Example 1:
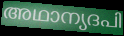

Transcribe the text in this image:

അഥാന്യദപി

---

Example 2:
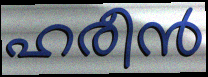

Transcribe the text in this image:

ഹരീൻ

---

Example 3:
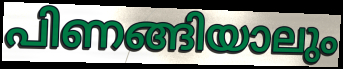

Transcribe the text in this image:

പിണങ്ങിയാലും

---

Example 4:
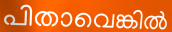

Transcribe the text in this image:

പിതാവെങ്കിൽ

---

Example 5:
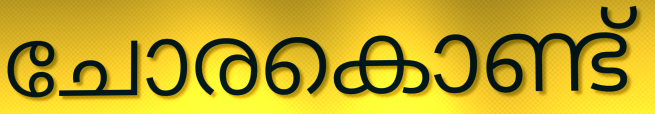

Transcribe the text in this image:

ചോരകൊണ്ട്